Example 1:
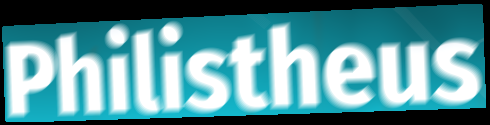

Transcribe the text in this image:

Philistheus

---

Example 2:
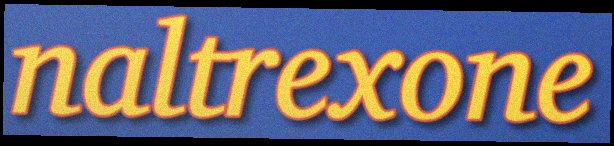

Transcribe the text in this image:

naltrexone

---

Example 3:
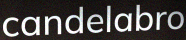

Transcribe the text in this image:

candelabro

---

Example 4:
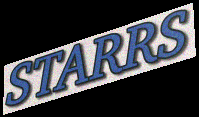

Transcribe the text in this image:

STARRS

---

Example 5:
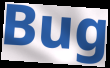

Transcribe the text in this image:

Bug